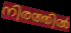
നിരത്തിൽ